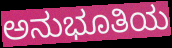
ಅನುಭೂತಿಯ